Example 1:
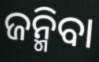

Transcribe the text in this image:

ଜନ୍ମିବା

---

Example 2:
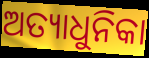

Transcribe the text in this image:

ଅତ୍ୟାଧୁନିକା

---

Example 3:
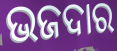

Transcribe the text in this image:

ଭଜଦାର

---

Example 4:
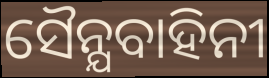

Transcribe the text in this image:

ସୈନ୍ଯବାହିନୀ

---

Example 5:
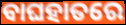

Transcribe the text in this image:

ବାଘହାତରେ